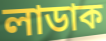
লাডাক